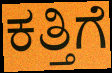
ಕತ್ತಿಗೆ